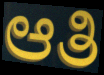
ಆತಿ